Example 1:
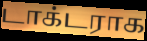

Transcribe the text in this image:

டாக்டராக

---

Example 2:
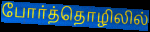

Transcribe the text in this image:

போர்த்தொழிலில்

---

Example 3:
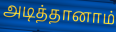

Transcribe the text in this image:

அடித்தானாம்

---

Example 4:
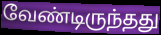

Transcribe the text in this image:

வேண்டிருந்தது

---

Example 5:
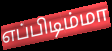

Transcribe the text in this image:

எப்பிடிம்மா